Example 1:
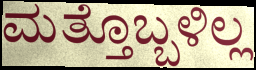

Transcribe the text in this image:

ಮತ್ತೊಬ್ಬಳಿಲ್ಲ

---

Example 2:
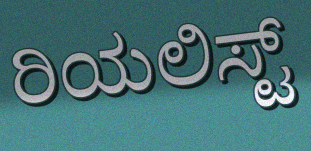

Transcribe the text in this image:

ರಿಯಲಿಸ್ಟ್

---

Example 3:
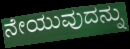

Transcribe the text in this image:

ನೇಯುವುದನ್ನು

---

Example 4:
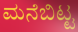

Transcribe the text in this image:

ಮನೆಬಿಟ್ಟ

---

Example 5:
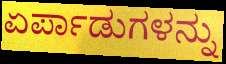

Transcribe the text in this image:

ಏರ್ಪಾಡುಗಳನ್ನು